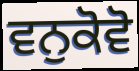
ਵਨੁਕੋਵੋ